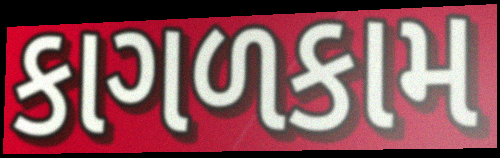
કાગળકામ